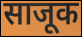
साजूक